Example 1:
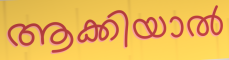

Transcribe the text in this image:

ആക്കിയാൽ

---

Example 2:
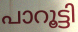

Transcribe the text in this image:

പാറൂട്ടി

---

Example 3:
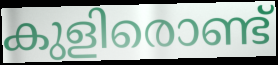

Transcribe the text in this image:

കുളിരൊണ്ട്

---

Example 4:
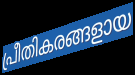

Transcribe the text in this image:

പ്രീതികരങ്ങളായ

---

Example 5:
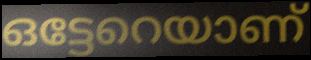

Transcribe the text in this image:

ഒട്ടേറെയാണ്